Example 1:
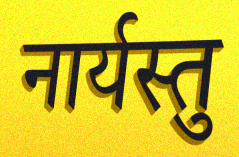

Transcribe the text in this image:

नार्यस्तु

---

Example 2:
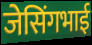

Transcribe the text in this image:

जेसिंगभाई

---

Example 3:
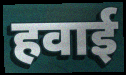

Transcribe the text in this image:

हवाई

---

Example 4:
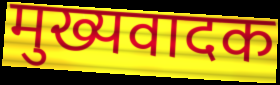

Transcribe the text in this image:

मुख्यवादक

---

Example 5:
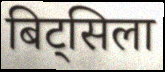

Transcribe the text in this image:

बिट्सिला